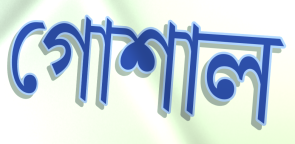
গোশাল